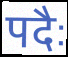
पदैः